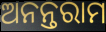
ଅନନ୍ତରାମ